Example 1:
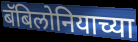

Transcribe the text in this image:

बॅबिलोनियाच्या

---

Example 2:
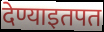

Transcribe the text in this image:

देण्याइतपत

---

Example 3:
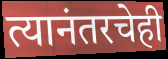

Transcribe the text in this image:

त्यानंतरचेही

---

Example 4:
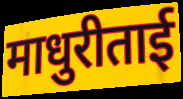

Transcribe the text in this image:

माधुरीताई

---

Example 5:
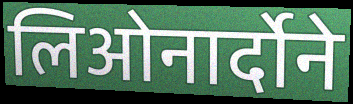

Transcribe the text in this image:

लिओनार्दोने